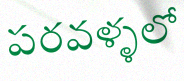
పరవళ్ళలో